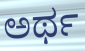
ಅರ್ಥ